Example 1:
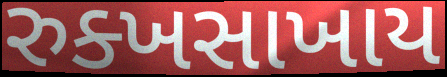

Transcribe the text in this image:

રુક્ખસાખાય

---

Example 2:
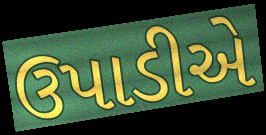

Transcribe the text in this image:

ઉપાડીએ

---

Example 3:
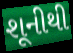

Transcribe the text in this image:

શૂનીથી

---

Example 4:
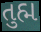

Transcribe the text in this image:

તુહ્મ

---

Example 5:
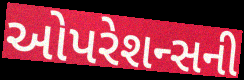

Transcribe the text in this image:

ઓપરેશન્સની